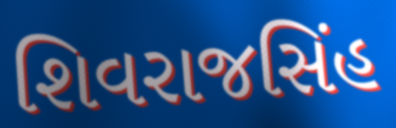
શિવરાજસિંહ